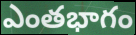
ఎంతభాగం